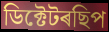
ডিক্টেটৰছিপ